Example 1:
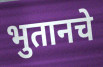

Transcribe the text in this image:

भुतानचे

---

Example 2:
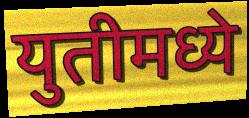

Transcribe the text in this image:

युतीमध्ये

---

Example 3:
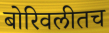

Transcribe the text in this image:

बोरिवलीतच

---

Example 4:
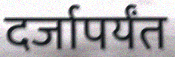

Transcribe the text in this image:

दर्जापर्यंत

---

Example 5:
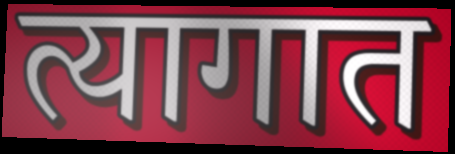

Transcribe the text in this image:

त्यागात